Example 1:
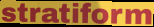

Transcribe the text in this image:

stratiform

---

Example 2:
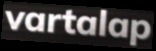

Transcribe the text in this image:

vartalap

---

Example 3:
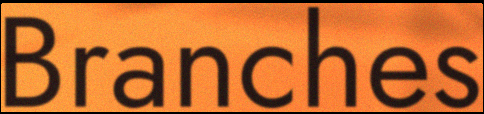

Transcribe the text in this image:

Branches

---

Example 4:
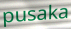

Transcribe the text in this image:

pusaka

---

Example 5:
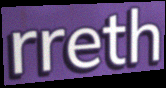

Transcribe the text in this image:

rreth